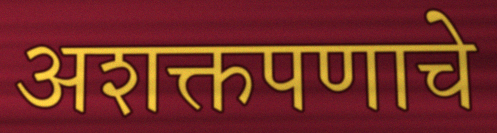
अशक्तपणाचे